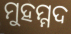
ମୁହମ୍ମଦ